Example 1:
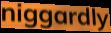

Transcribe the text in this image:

niggardly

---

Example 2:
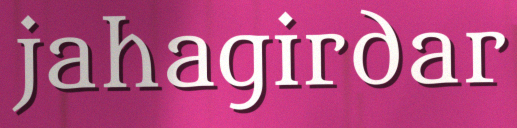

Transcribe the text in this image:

jahagirdar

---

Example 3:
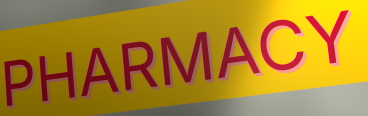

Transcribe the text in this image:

PHARMACY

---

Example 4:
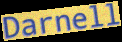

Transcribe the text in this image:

Darnell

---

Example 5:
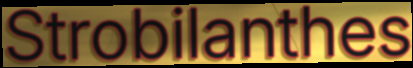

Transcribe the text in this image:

Strobilanthes